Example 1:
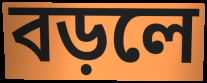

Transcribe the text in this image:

বড়লে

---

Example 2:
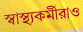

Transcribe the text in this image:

স্বাস্থ্যকর্মীরাও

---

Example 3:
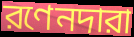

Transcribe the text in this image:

রণেনদারা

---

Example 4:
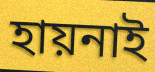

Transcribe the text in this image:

হায়নাই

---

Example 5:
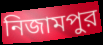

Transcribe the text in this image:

নিজামপুর